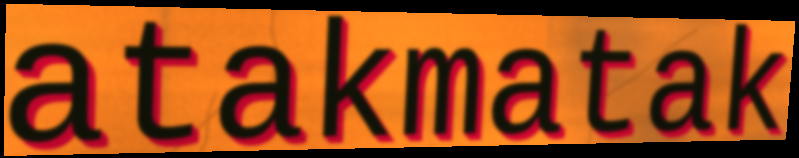
atakmatak